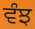
ਵੰਝ